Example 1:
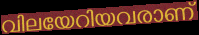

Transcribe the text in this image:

വിലയേറിയവരാണ്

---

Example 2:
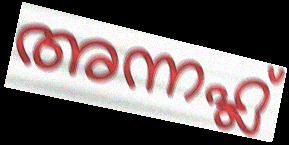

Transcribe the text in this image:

അന്നഹ്ല്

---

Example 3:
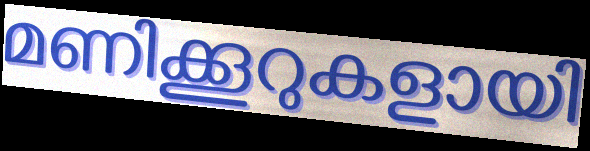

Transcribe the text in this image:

മണിക്കൂറുകളായി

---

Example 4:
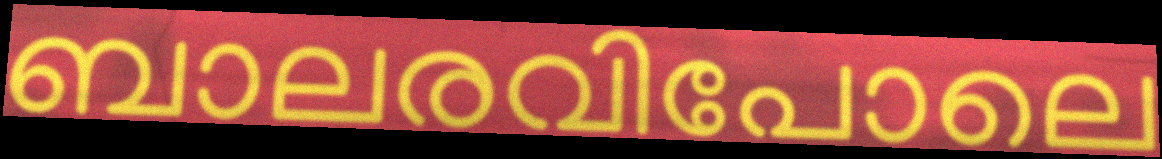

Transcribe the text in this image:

ബാലരവിപോലെ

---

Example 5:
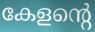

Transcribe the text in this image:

കേളന്റെ